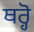
ਥਰ੍ਹੋ